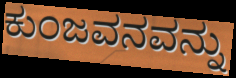
ಕುಂಜವನವನ್ನು